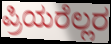
ಪ್ರಿಯರೆಲ್ಲರ